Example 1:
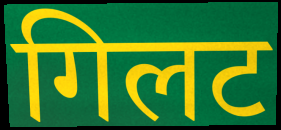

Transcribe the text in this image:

गिलट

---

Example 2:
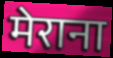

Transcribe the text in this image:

मेराना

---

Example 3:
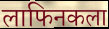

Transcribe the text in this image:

लाफिनकला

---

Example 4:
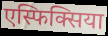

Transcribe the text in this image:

एस्फिक्सिया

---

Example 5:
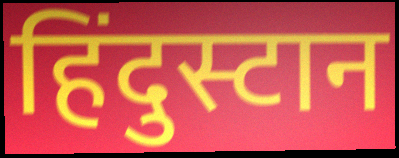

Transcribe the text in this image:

हिंदुस्टान